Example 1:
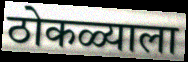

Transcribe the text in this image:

ठोकळ्याला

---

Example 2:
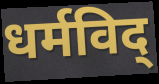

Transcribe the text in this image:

धर्मविद्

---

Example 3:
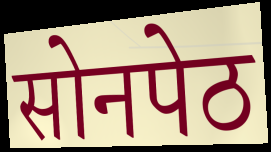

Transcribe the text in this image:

सोनपेठ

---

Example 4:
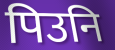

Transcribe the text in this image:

पिउनि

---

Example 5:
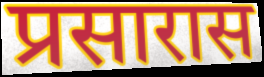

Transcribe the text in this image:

प्रसारास